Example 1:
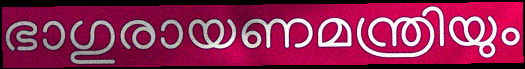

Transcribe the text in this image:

ഭാഗുരായണമന്ത്രിയും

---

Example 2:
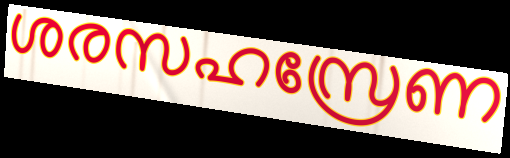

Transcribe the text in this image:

ശരസഹസ്രേണ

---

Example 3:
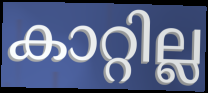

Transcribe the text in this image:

കാറ്റില്ല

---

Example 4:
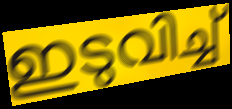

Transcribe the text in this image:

ഇടുവിച്ച്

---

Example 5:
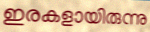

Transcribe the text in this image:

ഇരകളായിരുന്നു